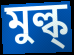
মুল্ক্